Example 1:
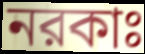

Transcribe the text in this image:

নরকাঃ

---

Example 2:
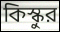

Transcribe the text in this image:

কিস্কুর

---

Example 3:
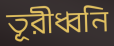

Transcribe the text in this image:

তূরীধ্বনি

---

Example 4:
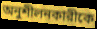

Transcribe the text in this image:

অনুশীলনকারীকে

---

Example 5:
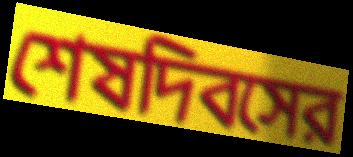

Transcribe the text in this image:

শেষদিবসের